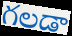
గలడా